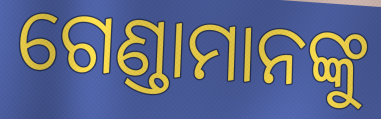
ଗେଣ୍ଡାମାନଙ୍କୁ